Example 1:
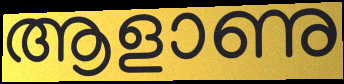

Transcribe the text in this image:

ആളാണു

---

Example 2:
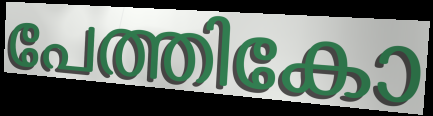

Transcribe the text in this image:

പേത്തികോ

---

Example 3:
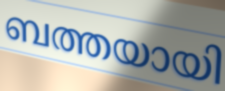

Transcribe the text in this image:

ബത്തയായി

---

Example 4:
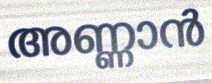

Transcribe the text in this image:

അണ്ണാൻ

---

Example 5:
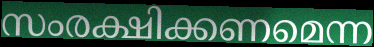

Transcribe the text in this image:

സംരക്ഷിക്കണമെന്ന